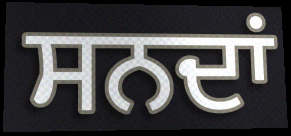
ਸਨਦਾਂ